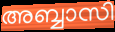
അബ്ബാസി